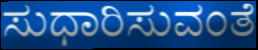
ಸುಧಾರಿಸುವಂತೆ